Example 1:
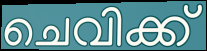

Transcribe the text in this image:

ചെവിക്ക്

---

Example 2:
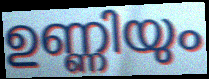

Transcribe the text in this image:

ഉണ്ണിയും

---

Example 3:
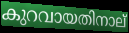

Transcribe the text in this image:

കുറവായതിനാല്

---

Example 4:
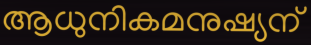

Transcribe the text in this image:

ആധുനികമനുഷ്യന്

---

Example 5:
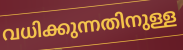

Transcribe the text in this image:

വധിക്കുന്നതിനുള്ള